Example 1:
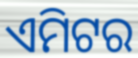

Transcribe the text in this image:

ଏମିଟର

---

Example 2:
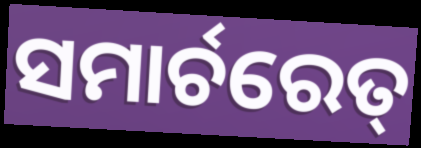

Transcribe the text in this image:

ସମାର୍ଚରେତ୍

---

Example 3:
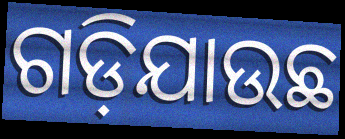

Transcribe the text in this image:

ଗଡ଼ିଯାଉଛ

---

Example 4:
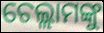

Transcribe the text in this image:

ଚେଲ୍ଲାମଙ୍କୁ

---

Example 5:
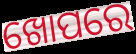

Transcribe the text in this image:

ଖୋପରେ